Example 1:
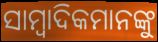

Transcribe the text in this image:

ସାମ୍ବାଦିକମାନଙ୍କୁ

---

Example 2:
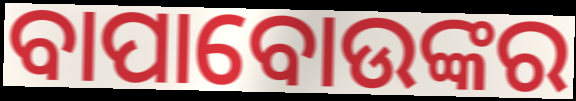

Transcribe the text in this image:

ବାପାବୋଉଙ୍କର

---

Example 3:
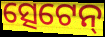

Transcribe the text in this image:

ତ୍ସେଟେନ୍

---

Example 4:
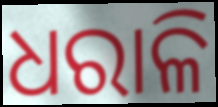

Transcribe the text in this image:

ଧରାଳି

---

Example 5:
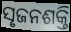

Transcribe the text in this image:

ସୃଜନଶକ୍ତି